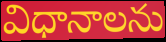
విధానాలను